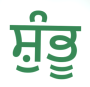
ਸ਼ੁੰਭੂ